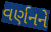
વર્ણનને